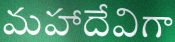
మహాదేవిగా